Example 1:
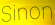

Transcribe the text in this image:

Sinon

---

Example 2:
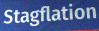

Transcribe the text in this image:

Stagflation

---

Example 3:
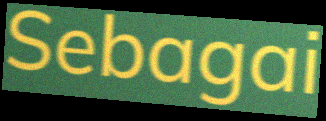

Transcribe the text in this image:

Sebagai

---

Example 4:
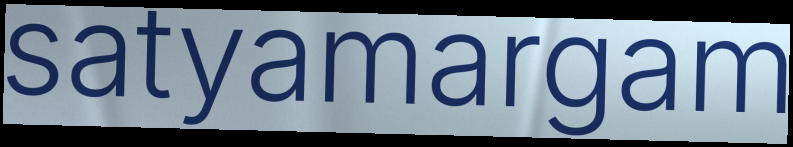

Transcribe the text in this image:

satyamargam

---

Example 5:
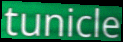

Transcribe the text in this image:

tunicle